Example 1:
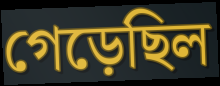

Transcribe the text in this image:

গেড়েছিল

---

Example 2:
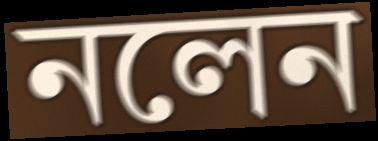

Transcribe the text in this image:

নলেন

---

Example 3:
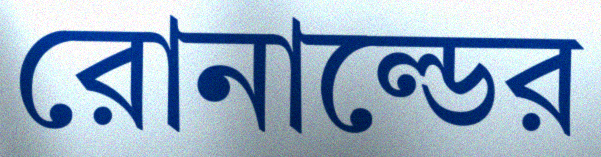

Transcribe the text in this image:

রোনাল্ডের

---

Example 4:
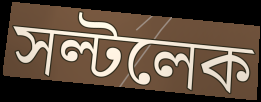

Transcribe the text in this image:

সল্টলেক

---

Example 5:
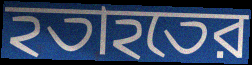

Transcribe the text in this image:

হতাহতের